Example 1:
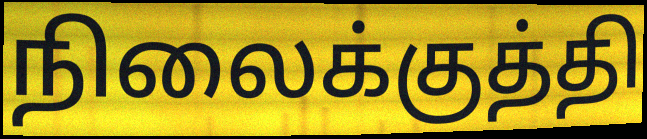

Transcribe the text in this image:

நிலைக்குத்தி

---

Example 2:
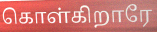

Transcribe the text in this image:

கொள்கிறாரே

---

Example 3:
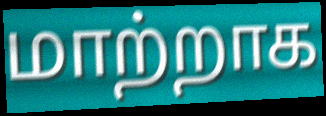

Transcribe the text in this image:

மாற்றாக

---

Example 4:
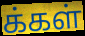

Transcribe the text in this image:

க்கள்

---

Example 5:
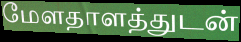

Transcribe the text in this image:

மேளதாளத்துடன்